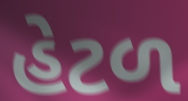
હેટળ